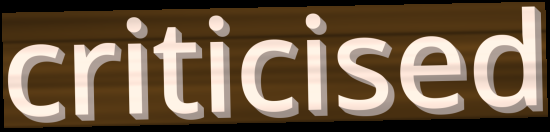
criticised